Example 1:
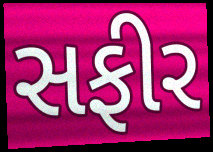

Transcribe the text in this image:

સફીર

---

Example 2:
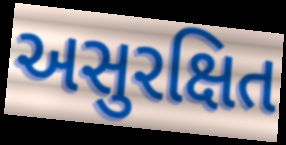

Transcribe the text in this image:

અસુરક્ષિત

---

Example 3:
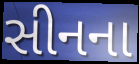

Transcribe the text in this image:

સીનના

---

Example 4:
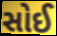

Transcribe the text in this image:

સોઈ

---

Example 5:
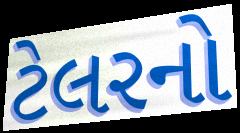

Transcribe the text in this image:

ટેલરનો